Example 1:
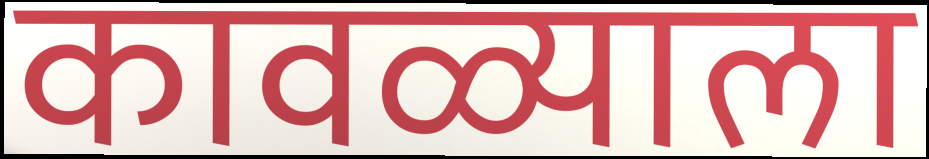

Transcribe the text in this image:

कावळ्याला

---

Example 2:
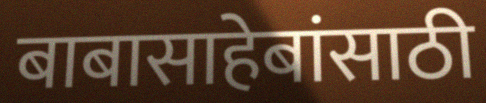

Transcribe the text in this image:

बाबासाहेबांसाठी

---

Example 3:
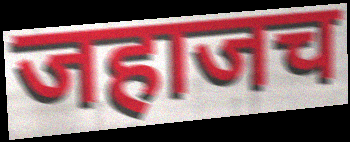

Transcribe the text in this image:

जहाजच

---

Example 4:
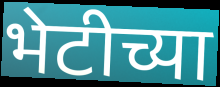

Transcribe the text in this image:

भेटीच्या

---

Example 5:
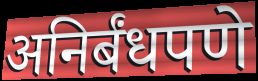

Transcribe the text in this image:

अनिर्बंधपणे